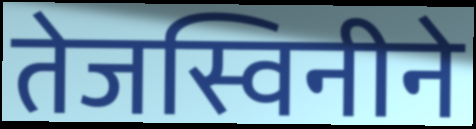
तेजस्विनीने